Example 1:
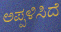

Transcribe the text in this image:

ಅಪ್ಪಳಿಸಿದೆ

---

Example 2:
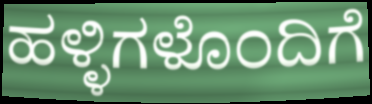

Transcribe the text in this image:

ಹಳ್ಳಿಗಳೊಂದಿಗೆ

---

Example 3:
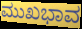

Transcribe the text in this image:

ಮುಖಭಾವ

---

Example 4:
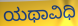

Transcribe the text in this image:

ಯಥಾವಿಧಿ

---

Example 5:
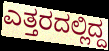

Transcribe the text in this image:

ಎತ್ತರದಲ್ಲಿದ್ದ